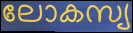
ലോകസ്യ